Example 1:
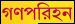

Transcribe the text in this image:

গণপরিহন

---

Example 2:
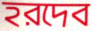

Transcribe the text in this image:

হরদেব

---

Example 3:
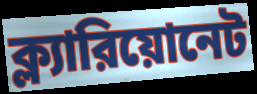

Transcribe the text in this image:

ক্ল্যারিয়োনেট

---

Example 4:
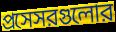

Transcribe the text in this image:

প্রসেসরগুলোর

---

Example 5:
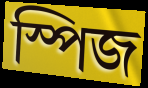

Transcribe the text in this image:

স্পিজ